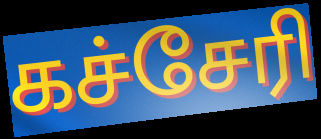
கச்சேரி